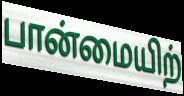
பான்மையிற்